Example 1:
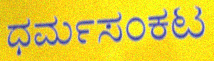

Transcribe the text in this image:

ಧರ್ಮಸಂಕಟ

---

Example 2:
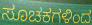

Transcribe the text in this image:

ಸೂಚಕಗಳಿಂದ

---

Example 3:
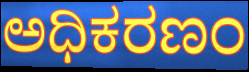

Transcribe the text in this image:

ಅಧಿಕರಣಂ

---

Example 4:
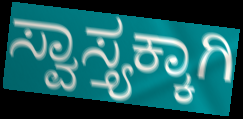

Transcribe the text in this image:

ಸ್ವಾಸ್ತ್ಯಕ್ಕಾಗಿ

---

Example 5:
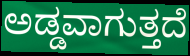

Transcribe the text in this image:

ಅಡ್ಡವಾಗುತ್ತದೆ